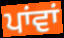
ਪਾਂਵਾਂ